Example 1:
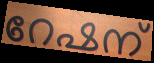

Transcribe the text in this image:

റേഷന്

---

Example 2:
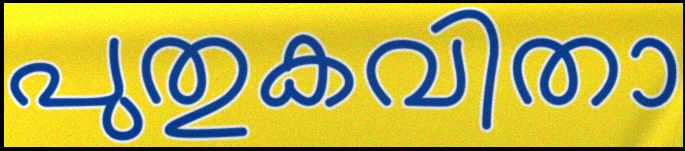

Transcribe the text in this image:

പുതുകവിതാ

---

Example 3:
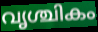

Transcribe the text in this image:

വൃശ്ചികം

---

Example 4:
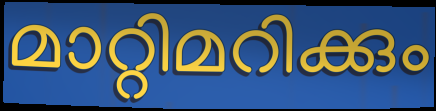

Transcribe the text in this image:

മാറ്റിമറിക്കും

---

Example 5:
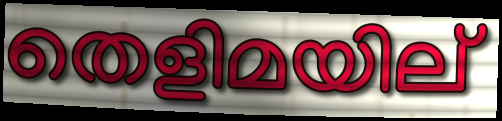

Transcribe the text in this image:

തെളിമയില്